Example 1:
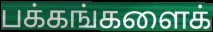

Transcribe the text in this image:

பக்கங்களைக்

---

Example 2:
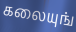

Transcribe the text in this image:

கலையுங்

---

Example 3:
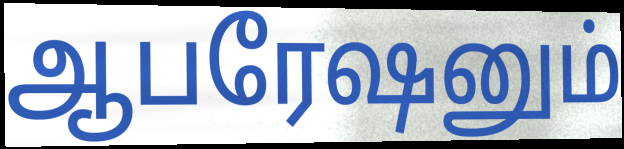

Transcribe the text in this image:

ஆபரேஷனும்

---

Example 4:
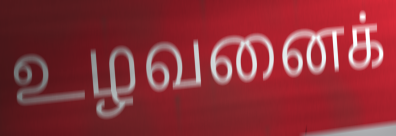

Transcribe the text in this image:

உழவனைக்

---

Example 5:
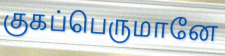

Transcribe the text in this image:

குகப்பெருமானே